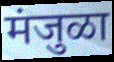
मंजुळा